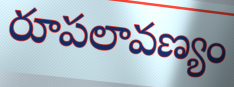
రూపలావణ్యం